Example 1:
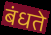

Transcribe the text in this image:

बंधते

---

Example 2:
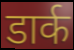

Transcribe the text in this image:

डार्क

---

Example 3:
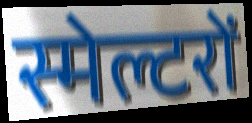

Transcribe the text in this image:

स्मेल्टरों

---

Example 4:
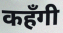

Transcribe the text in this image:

कहँगी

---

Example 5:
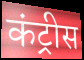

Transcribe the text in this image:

कंट्रीस